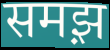
समझ़